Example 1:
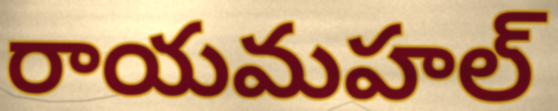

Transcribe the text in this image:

రాయమహల్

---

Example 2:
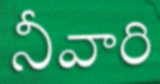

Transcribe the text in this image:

నీవారి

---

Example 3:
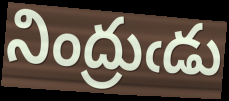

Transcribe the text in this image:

నింద్రుఁడు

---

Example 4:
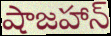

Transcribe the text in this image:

షాజహాన్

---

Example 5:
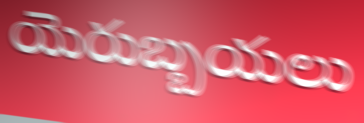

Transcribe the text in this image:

యెరుబ్బయలు